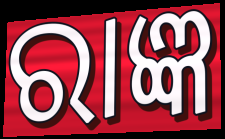
ରାଜ୍ଞ